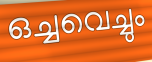
ഒച്ചവെച്ചും